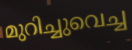
മുറിച്ചുവെച്ച